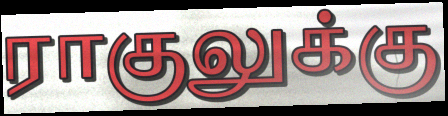
ராகுலுக்கு